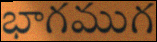
భాగముగ